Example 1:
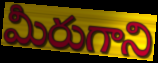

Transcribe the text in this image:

మీరుగాని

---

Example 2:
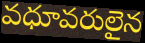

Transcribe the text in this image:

వధూవరులైన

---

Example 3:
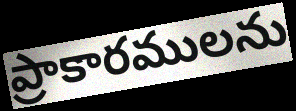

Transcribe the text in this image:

ప్రాకారములను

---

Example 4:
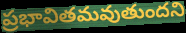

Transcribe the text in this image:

ప్రభావితమవుతుందని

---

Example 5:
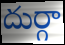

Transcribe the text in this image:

దుర్గా